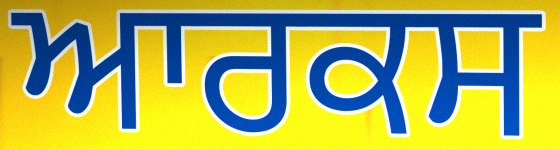
ਆਰਕਸ